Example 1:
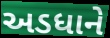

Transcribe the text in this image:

અડધાને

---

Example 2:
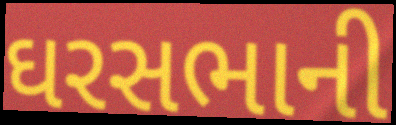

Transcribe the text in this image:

ઘરસભાની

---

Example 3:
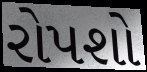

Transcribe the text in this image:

રોપશો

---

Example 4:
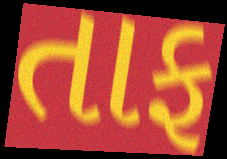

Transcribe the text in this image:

તાફ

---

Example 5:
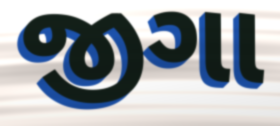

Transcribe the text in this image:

જીગા